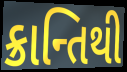
ક્રાન્તિથી